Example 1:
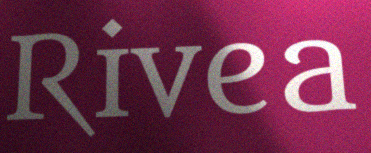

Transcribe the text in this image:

Rivea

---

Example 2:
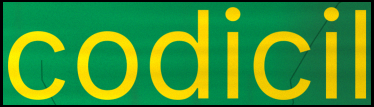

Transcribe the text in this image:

codicil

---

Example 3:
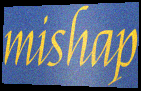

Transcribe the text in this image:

mishap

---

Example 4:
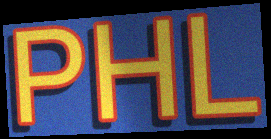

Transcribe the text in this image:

PHL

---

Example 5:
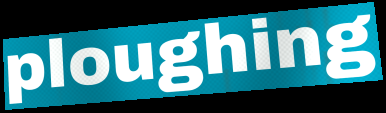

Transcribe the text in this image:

ploughing